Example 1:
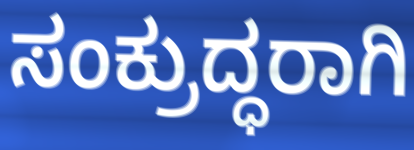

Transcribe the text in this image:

ಸಂಕ್ರುದ್ಧರಾಗಿ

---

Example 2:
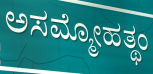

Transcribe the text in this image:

ಅಸಮ್ಮೋಹತ್ಥಂ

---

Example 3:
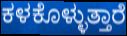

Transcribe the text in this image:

ಕಳಕೊಳ್ಳುತ್ತಾರೆ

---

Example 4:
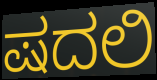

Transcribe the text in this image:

ಷದಲಿ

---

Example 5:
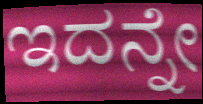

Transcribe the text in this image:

ಇದನ್ನೇ